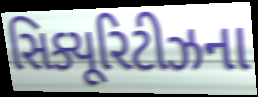
સિક્યૂરિટીઝના